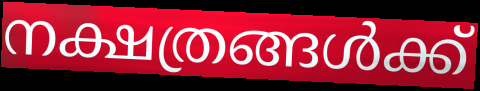
നക്ഷത്രങ്ങൾക്ക്